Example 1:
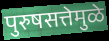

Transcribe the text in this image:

पुरुषसत्तेमुळे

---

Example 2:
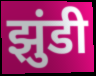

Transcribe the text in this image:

झुंडी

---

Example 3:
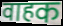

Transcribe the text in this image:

वाहक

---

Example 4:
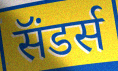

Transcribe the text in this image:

सॅंडर्स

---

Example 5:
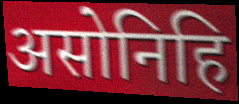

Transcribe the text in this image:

असोनिहि